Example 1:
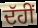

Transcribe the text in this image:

ਦੱਹੀਂ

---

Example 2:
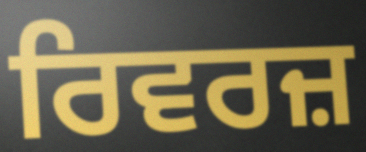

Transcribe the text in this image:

ਰਿਵਰਜ਼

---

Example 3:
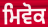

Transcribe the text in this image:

ਮਿਵੋਕ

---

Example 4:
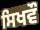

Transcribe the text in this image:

ਸਿਖਵੌ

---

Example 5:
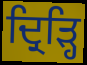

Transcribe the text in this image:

ਦ੍ਰਿੜ੍ਹਿ